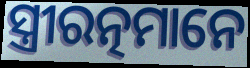
ସ୍ତ୍ରୀରତ୍ନମାନେ